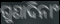
ଗୁଣାଦିନାଂ